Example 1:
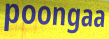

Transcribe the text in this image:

poongaa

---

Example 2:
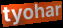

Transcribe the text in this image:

tyohar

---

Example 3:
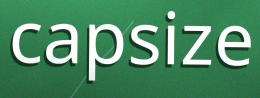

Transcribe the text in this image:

capsize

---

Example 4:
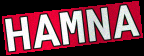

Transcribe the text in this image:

HAMNA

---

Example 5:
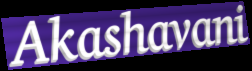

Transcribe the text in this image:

Akashavani